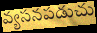
వ్యసనపడుచు